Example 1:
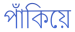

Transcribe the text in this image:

পাঁকিয়ে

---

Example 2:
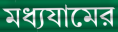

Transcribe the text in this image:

মধ্যযামের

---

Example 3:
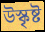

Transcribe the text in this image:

উস্কৃষ্ট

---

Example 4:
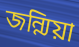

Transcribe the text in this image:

জন্মিয়া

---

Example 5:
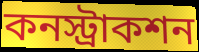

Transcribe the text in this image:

কনস্ট্রাকশন